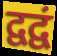
द्वद्वं